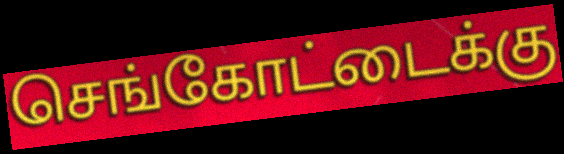
செங்கோட்டைக்கு